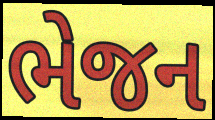
ભેજન